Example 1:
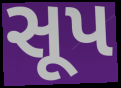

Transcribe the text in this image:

સૂપ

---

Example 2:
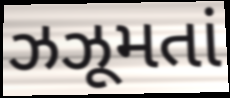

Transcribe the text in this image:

ઝઝૂમતાં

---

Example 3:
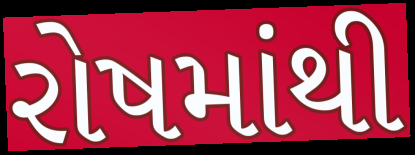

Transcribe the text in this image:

રોષમાંથી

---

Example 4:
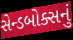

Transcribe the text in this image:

સેન્ડબોક્સનું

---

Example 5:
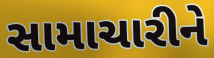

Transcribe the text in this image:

સામાચારીને